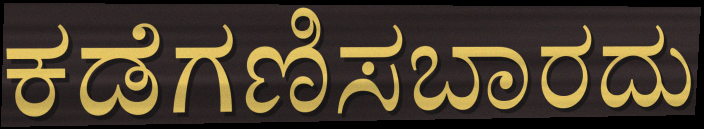
ಕಡೆಗಣಿಸಬಾರದು